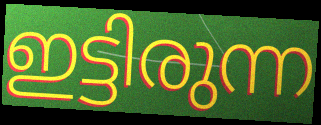
ഇട്ടിരുന്ന